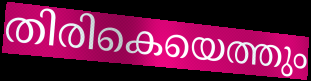
തിരികെയെത്തും